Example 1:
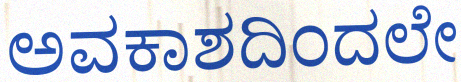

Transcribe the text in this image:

ಅವಕಾಶದಿಂದಲೇ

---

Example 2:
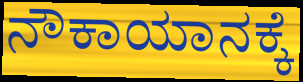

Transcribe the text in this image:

ನೌಕಾಯಾನಕ್ಕೆ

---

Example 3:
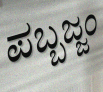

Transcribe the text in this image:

ಪಬ್ಬಜ್ಜಂ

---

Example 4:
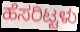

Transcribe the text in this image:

ಹೆಸರಿಟ್ಟಳು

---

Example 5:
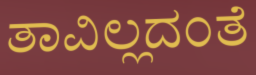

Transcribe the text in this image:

ತಾವಿಲ್ಲದಂತೆ